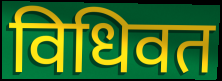
विधिवत